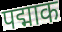
पद्माक